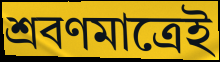
শ্রবণমাত্রেই